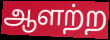
ஆளற்ற